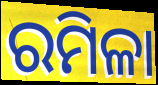
ରମିଳା